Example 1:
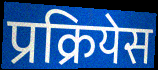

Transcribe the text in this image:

प्रक्रियेस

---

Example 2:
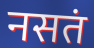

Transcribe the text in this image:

नसतं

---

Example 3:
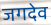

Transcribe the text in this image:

जगदेव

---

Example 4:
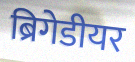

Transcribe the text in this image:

ब्रिगेडीयर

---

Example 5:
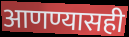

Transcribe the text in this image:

आणण्यासही